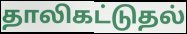
தாலிகட்டுதல்